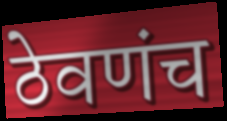
ठेवणंच